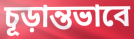
চূড়ান্তভাবে